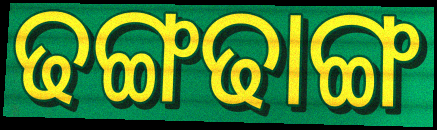
ଢଙ୍ଗଢାଙ୍ଗ